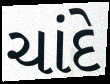
ચાંદે